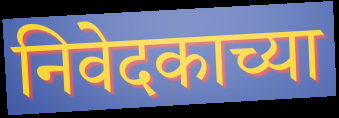
निवेदकाच्या